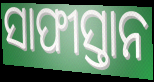
ସାଫୀସ୍ତାନ